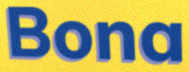
Bona